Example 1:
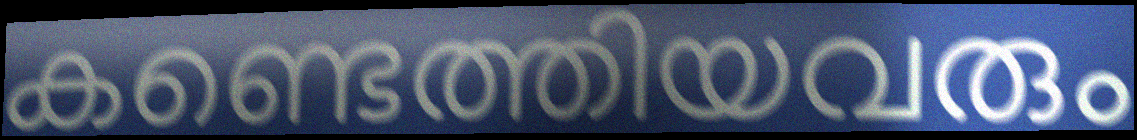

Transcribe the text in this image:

കണ്ടെത്തിയവരും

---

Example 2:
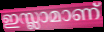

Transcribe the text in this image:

ഇസ്ലാമാണ്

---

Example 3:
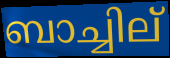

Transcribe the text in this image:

ബാച്ചില്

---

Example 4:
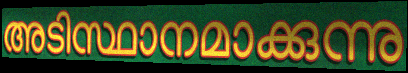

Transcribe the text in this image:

അടിസ്ഥാനമാക്കുന്നു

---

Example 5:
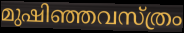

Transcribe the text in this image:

മുഷിഞ്ഞവസ്ത്രം